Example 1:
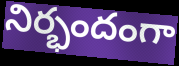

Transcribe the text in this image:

నిర్భందంగా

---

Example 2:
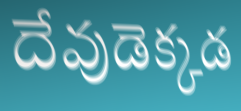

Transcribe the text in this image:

దేవుడెక్కడ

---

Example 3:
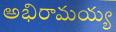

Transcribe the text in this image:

అభిరామయ్య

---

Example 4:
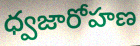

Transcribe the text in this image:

ధ్వజారోహణ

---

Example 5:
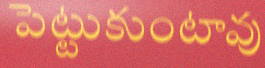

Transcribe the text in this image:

పెట్టుకుంటావు